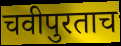
चवीपुरताच